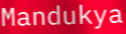
Mandukya